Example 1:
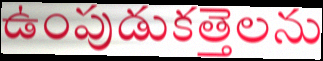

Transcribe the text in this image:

ఉంపుడుకత్తెలను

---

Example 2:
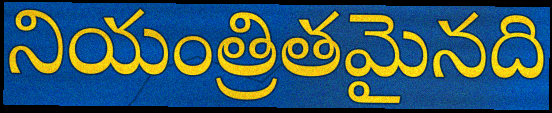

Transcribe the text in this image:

నియంత్రితమైనది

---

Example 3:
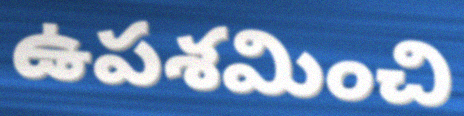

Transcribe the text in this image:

ఉపశమించి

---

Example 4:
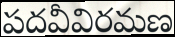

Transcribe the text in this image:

పదవీవిరమణ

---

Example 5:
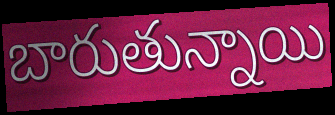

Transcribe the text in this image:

బారుతున్నాయి